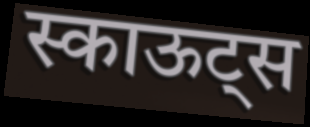
स्काऊट्स